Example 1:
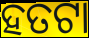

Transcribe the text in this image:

ହତଟା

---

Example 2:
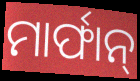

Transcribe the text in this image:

ମାର୍ଫାନ୍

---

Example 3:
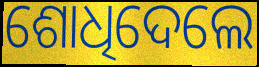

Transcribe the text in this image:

ଶୋଧିଦେଲେ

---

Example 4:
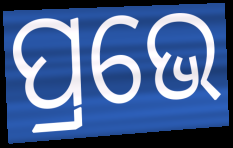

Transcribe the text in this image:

ପ୍ରଭେ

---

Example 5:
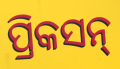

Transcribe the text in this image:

ପ୍ରିକସନ୍